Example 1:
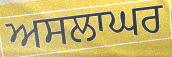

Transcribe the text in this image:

ਅਸਲਾਘਰ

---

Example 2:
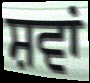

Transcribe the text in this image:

ਸ਼ਵਾਂ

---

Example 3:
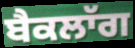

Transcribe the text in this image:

ਬੈਕਲਾੱਗ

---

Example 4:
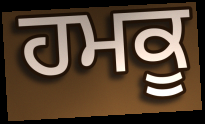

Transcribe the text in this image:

ਹਮਕੂ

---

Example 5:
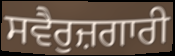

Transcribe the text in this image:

ਸਵੈਰੁਜ਼ਗਾਰੀ